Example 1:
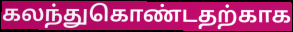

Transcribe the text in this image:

கலந்துகொண்டதற்காக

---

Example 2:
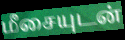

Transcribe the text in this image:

மீசையுடன்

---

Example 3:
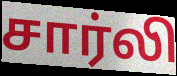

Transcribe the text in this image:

சார்லி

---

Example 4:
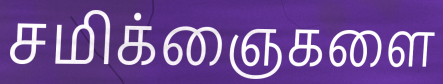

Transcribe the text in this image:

சமிக்ஞைகளை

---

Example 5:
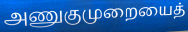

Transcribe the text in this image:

அணுகுமுறையைத்